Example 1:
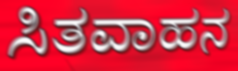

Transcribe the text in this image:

ಸಿತವಾಹನ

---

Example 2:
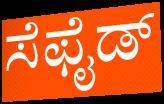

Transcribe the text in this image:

ಸೆಫೈಡ್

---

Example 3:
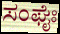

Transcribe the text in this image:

ಸಂಘೈಃ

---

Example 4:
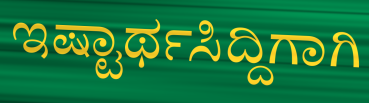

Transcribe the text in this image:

ಇಷ್ಟಾರ್ಥಸಿದ್ದಿಗಾಗಿ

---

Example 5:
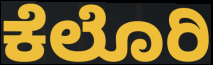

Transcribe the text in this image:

ಕೆಲೊರಿ